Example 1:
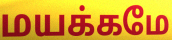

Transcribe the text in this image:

மயக்கமே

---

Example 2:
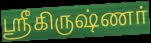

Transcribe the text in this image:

ஶ்ரீகிருஷ்ணர்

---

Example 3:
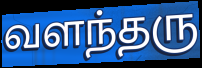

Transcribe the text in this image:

வளந்தரு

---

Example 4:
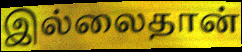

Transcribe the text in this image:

இல்லைதான்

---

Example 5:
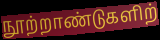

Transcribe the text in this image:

நூற்றாண்டுகளிற்